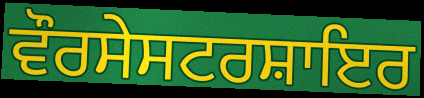
ਵੌਰਸੇਸਟਰਸ਼ਾਇਰ